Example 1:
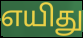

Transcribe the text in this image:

எயிது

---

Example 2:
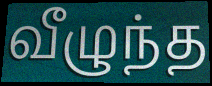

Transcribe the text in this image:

வீழுந்த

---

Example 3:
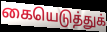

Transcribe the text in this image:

கையெடுத்துக்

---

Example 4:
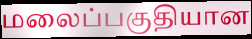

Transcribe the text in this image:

மலைப்பகுதியான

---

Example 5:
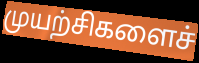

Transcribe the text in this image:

முயற்சிகளைச்